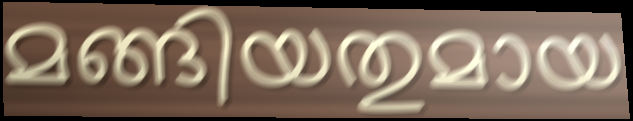
മങ്ങിയതുമായ